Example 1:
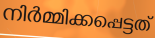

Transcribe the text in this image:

നിർമ്മിക്കപ്പെട്ടത്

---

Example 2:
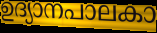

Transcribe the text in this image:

ഉദ്യാനപാലകാ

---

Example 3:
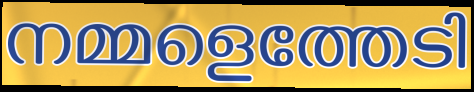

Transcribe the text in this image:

നമ്മളെത്തേടി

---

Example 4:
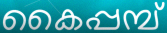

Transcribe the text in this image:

കൈപ്പമ്പ്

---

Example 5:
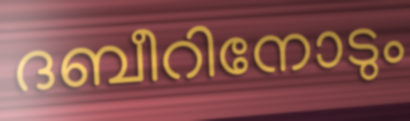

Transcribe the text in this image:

ദബീറിനോടും